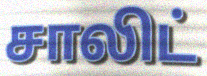
சாலிட்